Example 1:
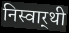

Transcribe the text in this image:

निस्वार्थी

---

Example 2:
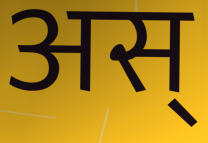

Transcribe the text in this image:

अस्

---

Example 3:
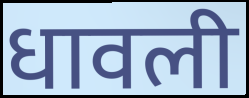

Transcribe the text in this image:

धावली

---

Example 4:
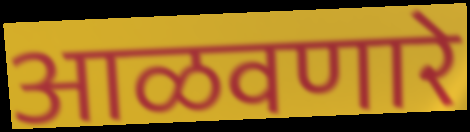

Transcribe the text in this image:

आळवणारे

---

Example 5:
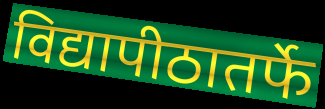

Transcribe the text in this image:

विद्यापीठातर्फे